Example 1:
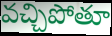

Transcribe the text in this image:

వచ్చిపోతూ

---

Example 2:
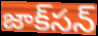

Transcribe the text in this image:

జాక్‌సన్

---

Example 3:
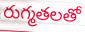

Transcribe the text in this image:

రుగ్మతలతో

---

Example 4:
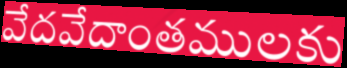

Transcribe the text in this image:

వేదవేదాంతములకు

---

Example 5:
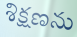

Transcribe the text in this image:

శిక్షణను